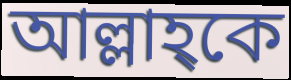
আল্লাহ্কে